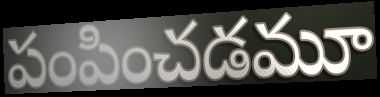
పంపించడమూ